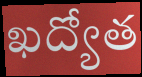
ఖద్యోత